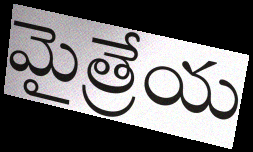
మైత్రేయ